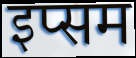
इप्सम